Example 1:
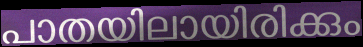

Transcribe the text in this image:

പാതയിലായിരിക്കും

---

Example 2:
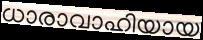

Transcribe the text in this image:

ധാരാവാഹിയായ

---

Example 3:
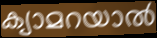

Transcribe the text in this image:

ക്യാമറയാൽ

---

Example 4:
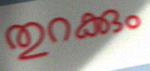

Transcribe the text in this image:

തുറക്കും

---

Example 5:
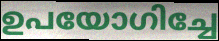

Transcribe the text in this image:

ഉപയോഗിച്ചേ